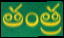
తంత్ర